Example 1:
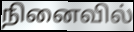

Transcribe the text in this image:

நினைவில்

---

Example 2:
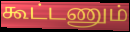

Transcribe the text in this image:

கூட்டணும்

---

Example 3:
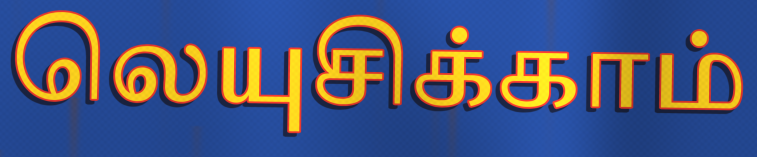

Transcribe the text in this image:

லெயுசிக்காம்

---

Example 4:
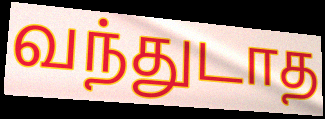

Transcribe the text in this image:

வந்துடாத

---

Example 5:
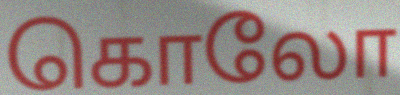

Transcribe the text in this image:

கொலோ